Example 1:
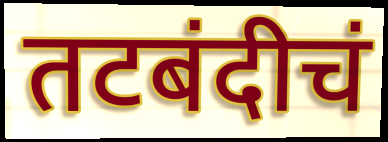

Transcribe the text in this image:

तटबंदीचं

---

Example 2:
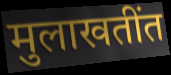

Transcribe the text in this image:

मुलाखतींत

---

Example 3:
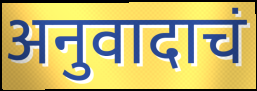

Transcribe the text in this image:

अनुवादाचं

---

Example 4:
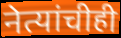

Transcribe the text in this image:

नेत्यांचीही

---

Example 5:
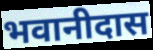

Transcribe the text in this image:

भवानीदास